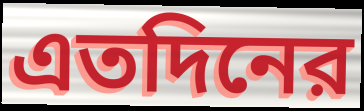
এতদিনের